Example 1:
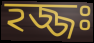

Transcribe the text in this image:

হজ্জঃ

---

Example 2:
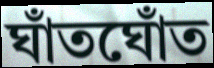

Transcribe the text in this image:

ঘাঁতঘোঁত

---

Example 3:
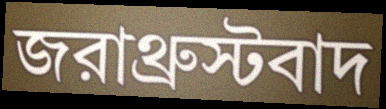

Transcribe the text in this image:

জরাথ্রুস্টবাদ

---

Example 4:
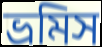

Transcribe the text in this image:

ভ্রমিস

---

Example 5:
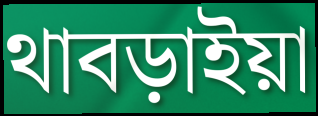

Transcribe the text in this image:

থাবড়াইয়া